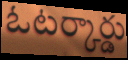
ఓటర్కార్డు